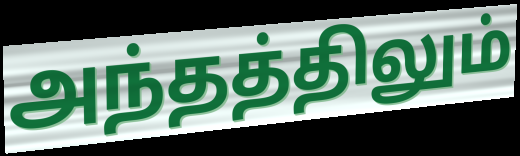
அந்தத்திலும்